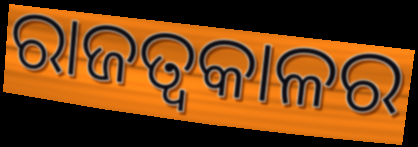
ରାଜତ୍ୱକାଳର